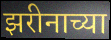
झरीनाच्या